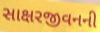
સાક્ષરજીવનની